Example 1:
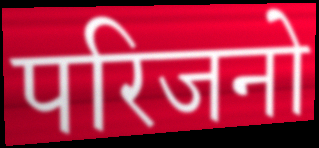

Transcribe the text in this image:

परिजनो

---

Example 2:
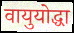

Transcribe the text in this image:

वायुयोद्धा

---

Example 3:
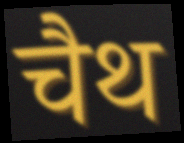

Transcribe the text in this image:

चैथ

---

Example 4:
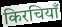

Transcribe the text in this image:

किरचियाँ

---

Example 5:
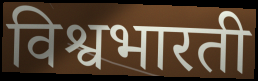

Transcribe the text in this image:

विश्वभारती